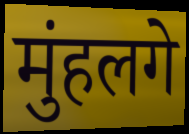
मुंहलगे